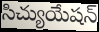
సిచ్యుయేషన్